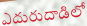
ఎదురుదాడిలో